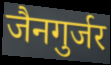
जैनगुर्जर